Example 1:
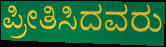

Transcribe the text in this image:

ಪ್ರೀತಿಸಿದವರು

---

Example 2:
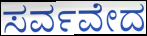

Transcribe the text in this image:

ಸರ್ವವೇದ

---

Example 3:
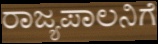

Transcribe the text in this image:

ರಾಜ್ಯಪಾಲನಿಗೆ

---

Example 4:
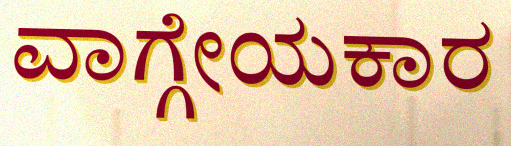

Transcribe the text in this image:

ವಾಗ್ಗೇಯಕಾರ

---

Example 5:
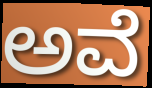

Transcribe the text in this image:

ಅವೆ